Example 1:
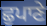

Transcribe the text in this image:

ਛੁਪਾਣੇ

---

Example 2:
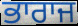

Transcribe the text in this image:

ਭਾਰਾਜ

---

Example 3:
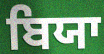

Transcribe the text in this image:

ਬਿਯਾ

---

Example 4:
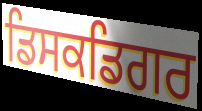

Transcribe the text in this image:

ਡਿਸਕਡਿਗਰ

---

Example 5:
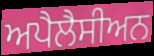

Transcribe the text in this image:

ਅਪੈਲੈਸੀਅਨ